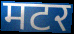
मटर